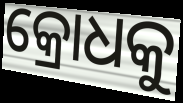
କ୍ରୋଧକୁ